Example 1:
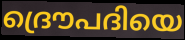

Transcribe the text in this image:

ദ്രൌപദിയെ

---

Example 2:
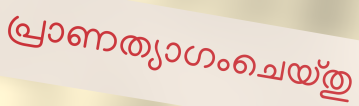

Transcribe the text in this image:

പ്രാണത്യാഗംചെയ്തു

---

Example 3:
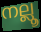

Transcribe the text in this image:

നല്ലൂ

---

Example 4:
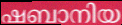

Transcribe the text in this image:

ഷബാനിയ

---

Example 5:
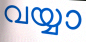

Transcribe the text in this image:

വയ്യാ